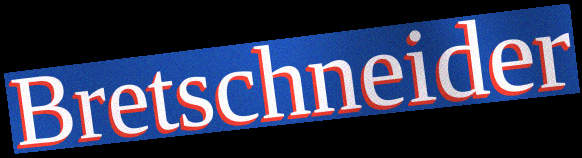
Bretschneider